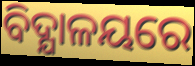
ବିଦ୍ଯାଳୟରେ